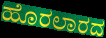
ಹೊರಲಾರದ